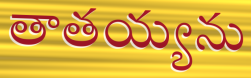
తాతయ్యను